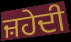
ਜ਼ਹੇਦੀ